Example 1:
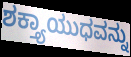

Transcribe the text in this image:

ಶಕ್ತ್ಯಾಯುಧವನ್ನು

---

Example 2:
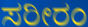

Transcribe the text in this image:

ಸರೀರಂ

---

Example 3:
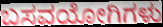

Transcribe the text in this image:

ಬಸವಯೋಗಿಗಳು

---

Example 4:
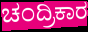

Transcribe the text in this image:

ಚಂದ್ರಿಕಾರ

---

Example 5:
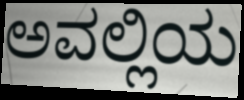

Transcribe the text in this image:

ಅವಲ್ಲಿಯ